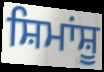
ਸ਼ਿਮਾਂਸ਼ੂ